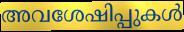
അവശേഷിപ്പുകൾ